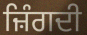
ਜ਼ਿੰਗਦੀ